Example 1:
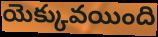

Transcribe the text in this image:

యెక్కువయింది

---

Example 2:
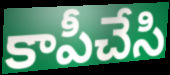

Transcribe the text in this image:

కాపీచేసి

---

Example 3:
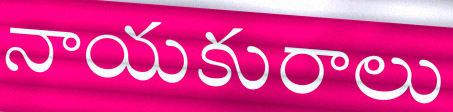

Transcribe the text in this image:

నాయకురాలు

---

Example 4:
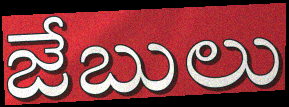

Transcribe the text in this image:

జేబులు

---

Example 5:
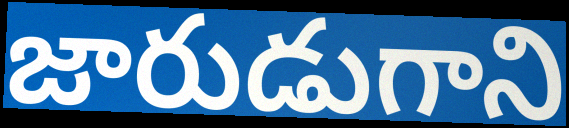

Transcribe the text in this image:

జారుడుగాని